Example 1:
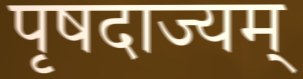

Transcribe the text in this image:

पृषदाज्यम्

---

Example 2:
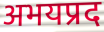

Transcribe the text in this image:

अभयप्रद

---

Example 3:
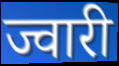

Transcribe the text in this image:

ज्वारी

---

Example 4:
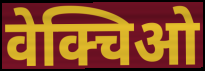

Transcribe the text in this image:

वेक्चिओ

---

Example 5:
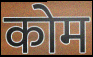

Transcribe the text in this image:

कोम